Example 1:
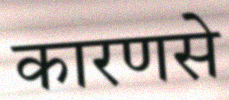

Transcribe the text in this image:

कारणसे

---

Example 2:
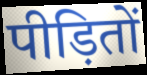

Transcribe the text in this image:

पीड़ितों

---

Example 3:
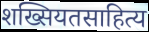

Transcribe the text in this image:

शख्सियतसाहित्य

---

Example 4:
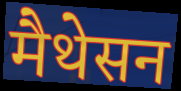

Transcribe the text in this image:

मैथेसन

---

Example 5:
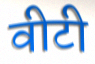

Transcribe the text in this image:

वीटी